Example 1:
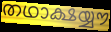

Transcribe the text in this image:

തഥാക്ഷയ്യൗ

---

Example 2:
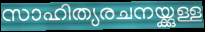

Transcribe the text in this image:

സാഹിത്യരചനയ്ക്കുള്ള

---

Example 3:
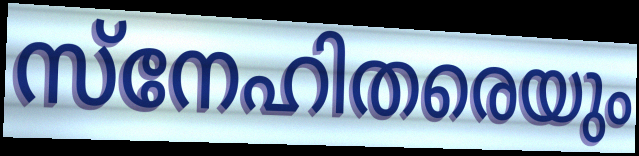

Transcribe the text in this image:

സ്നേഹിതരെയും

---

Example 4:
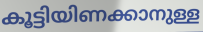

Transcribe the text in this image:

കൂട്ടിയിണക്കാനുള്ള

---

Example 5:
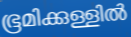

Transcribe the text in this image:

ഭൂമിക്കുള്ളിൽ